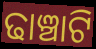
ଢାଞ୍ଚାଟି